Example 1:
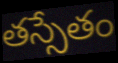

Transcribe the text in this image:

తస్సేతం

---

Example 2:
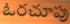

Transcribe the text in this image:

ఓరచూపు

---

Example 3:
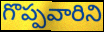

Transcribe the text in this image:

గొప్పవారిని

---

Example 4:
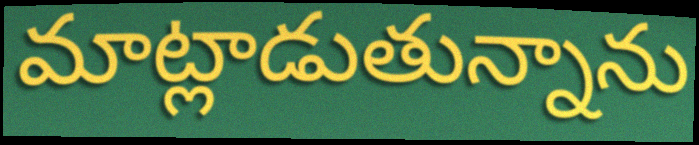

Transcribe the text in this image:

మాట్లాడుతున్నాను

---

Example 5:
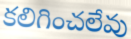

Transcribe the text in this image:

కలిగించలేవు